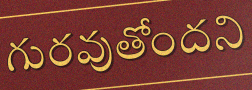
గురవుతోందని